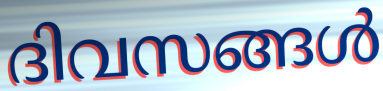
ദിവസങ്ങൾ